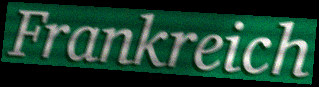
Frankreich